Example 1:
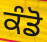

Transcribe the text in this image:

ਕੰਡੋ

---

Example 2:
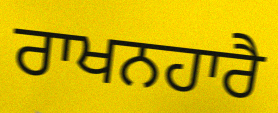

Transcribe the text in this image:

ਰਾਖਨਹਾਰੈ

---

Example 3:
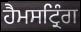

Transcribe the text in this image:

ਹੈਮਸਟ੍ਰਿੰਗ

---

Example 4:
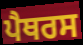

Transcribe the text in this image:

ਪੈਥਰਸ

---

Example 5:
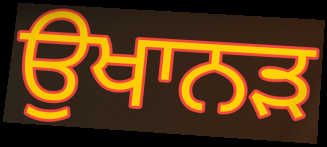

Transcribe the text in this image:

ਉਖਾਨੜ